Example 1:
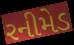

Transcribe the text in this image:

રનીમેડ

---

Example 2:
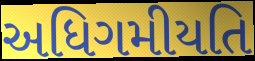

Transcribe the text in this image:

અધિગમીયતિ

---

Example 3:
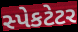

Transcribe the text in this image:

સ્પેકટેટર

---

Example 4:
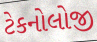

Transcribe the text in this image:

ટેકનોલોજી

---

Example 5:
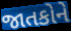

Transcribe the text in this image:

જાતકોને